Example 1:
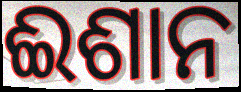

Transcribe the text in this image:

ଈଶାନ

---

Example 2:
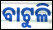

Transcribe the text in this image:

ବାଟୁଳି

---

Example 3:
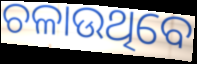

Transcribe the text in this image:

ଚଳାଉଥିବେ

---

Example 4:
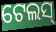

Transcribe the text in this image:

ଟେଲସ୍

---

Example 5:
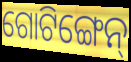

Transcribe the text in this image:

ଗୋଟିଙ୍ଗେନ୍